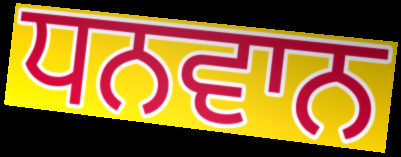
ਧਨਵਾਨ